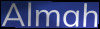
Almah